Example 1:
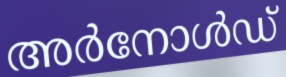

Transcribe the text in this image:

അർനോൾഡ്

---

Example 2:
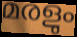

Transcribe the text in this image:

മരളും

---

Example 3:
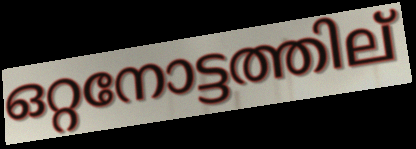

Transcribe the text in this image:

ഒറ്റനോട്ടത്തില്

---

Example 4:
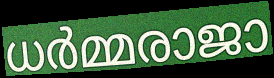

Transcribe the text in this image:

ധർമ്മരാജാ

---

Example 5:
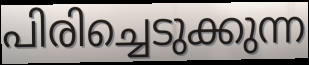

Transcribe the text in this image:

പിരിച്ചെടുക്കുന്ന